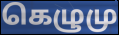
கெழுமு